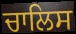
ਚਾਲਿਸ